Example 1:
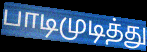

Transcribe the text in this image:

பாடிமுடித்து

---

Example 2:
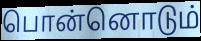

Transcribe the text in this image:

பொன்னொடும்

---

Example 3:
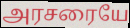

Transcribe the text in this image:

அரசரையே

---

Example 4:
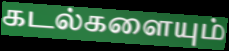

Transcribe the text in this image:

கடல்களையும்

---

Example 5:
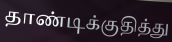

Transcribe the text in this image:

தாண்டிக்குதித்து